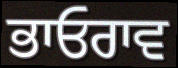
ਭਾਓਰਾਵ